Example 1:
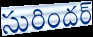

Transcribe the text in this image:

సురిందర్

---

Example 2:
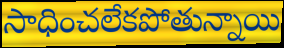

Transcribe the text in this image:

సాధించలేకపోతున్నాయి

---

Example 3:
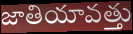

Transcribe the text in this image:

జాతియావత్తు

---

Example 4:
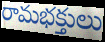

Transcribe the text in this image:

రామభక్తులు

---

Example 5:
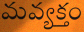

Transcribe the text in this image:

మవ్యక్తం